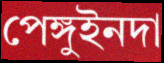
পেঙ্গুইনদা